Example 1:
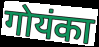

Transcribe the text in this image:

गोयंका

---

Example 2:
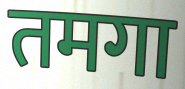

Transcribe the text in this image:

तमगा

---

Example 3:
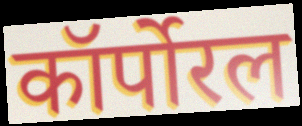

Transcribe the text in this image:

कॉर्पोरल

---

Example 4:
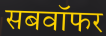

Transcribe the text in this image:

सबवॉफर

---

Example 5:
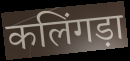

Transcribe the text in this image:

कलिंगड़ा